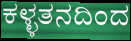
ಕಳ್ಳತನದಿಂದ